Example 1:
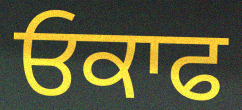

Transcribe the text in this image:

ਓਕਾਫ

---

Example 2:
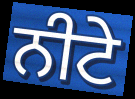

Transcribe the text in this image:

ਨੀਟੇ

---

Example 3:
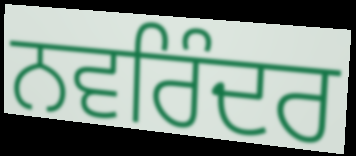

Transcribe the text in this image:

ਨਵਰਿੰਦਰ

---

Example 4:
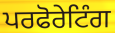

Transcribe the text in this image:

ਪਰਫੋਰੇਟਿੰਗ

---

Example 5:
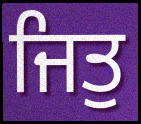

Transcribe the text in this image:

ਜਿਤੁ